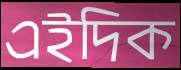
এইদিক